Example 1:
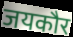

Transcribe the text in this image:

जयकौर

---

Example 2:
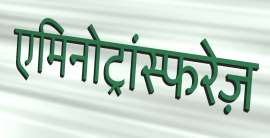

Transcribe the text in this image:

एमिनोट्रांस्फरेज़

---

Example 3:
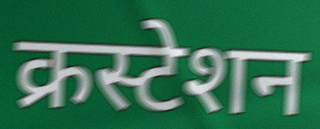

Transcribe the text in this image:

क्रस्टेशन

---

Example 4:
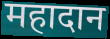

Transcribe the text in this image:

महादान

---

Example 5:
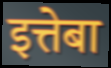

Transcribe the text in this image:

इत्तेबा